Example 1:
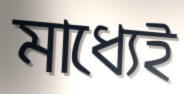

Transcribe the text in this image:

মাধ্যেই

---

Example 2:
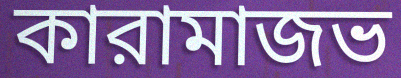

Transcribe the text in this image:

কারামাজভ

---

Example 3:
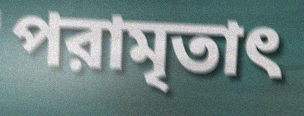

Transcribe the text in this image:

পরামৃতাৎ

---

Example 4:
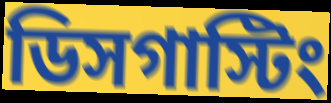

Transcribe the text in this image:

ডিসগাস্টিং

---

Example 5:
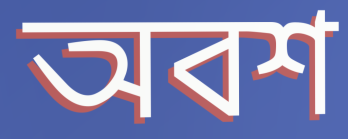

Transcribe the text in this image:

অবশ